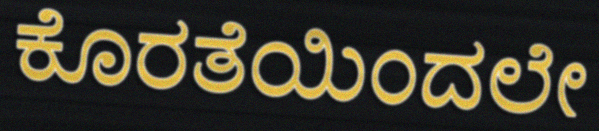
ಕೊರತೆಯಿಂದಲೇ